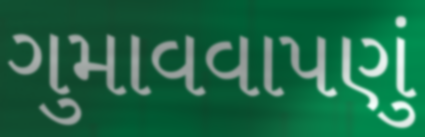
ગુમાવવાપણું